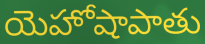
యెహోషాపాతు